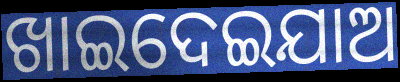
ଖାଇଦେଇଯାଅ